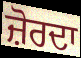
ਜ਼ੋਰਦਾ